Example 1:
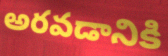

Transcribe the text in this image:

అరవడానికి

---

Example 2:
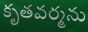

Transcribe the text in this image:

కృతవర్మను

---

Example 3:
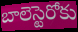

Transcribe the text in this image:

బాలెస్టెరోకు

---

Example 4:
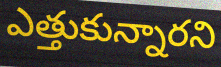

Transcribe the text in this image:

ఎత్తుకున్నారని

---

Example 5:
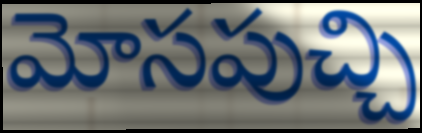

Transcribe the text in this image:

మోసపుచ్చి